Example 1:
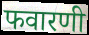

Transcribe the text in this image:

फवारणी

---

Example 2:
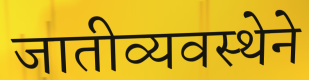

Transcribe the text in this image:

जातीव्यवस्थेने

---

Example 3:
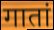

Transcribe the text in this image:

गातां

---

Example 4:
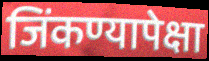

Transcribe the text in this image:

जिंकण्यापेक्षा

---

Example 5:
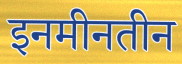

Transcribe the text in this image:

इनमीनतीन